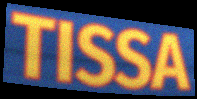
TISSA